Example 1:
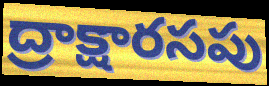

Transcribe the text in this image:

ద్రాక్షారసపు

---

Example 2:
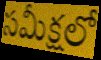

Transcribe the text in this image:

సమీక్షలో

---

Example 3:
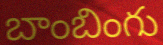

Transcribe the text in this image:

బాంబింగు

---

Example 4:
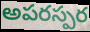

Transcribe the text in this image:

అపరస్పర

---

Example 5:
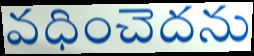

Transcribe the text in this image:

వధించెదను